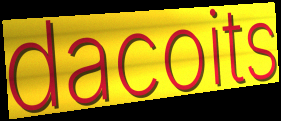
dacoits